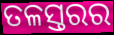
ତଳସ୍ତରର